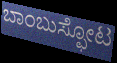
ಬಾಂಬುಸ್ಫೋಟ